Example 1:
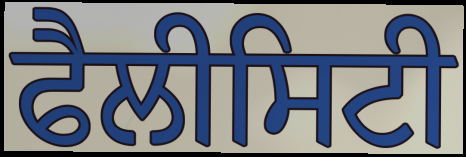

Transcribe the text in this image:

ਫੈਲੀਸਿਟੀ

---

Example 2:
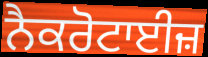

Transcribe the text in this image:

ਨੈਕਰੋਟਾਈਜ਼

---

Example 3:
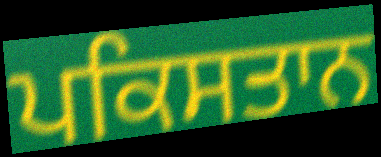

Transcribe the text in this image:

ਪਕਿਸਤਾਨ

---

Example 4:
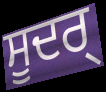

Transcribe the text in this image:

ਸੂਦਰ੍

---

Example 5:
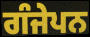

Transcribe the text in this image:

ਗੰਜੇਪਨ